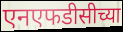
एनएफडीसीच्या